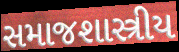
સમાજશાસ્ત્રીય